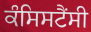
ਕੰਸਿਸਟੈਂਸੀ